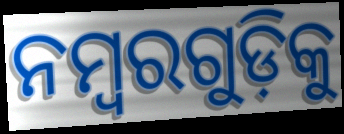
ନମ୍ବରଗୁଡ଼ିକୁ